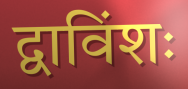
द्वाविंशः